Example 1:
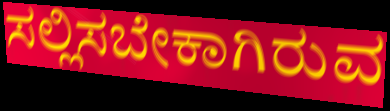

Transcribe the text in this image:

ಸಲ್ಲಿಸಬೇಕಾಗಿರುವ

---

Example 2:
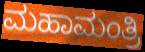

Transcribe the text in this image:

ಮಹಾಮಂತ್ರಿ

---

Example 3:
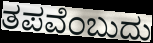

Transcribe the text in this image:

ತಪವೆಂಬುದು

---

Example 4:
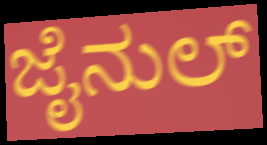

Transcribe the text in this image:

ಜೈನುಲ್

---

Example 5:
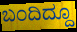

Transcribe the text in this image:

ಬಂದಿದ್ದೂ